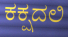
ಕಕ್ಷದಲಿ